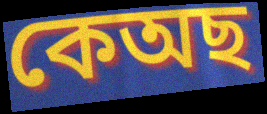
কেঅছ